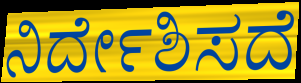
ನಿರ್ದೇಶಿಸದೆ